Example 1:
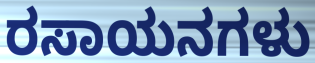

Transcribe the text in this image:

ರಸಾಯನಗಳು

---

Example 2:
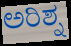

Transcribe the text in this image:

ಅರಿಶ್ನ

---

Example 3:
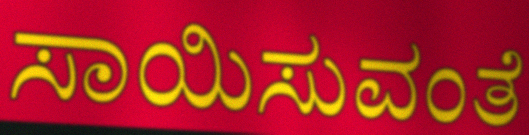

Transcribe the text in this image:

ಸಾಯಿಸುವಂತೆ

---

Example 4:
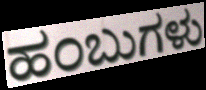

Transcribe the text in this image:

ಹಂಬುಗಳು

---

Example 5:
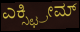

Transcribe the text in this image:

ಎಕ್ಸ್ಟ್ರೀಮ್